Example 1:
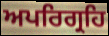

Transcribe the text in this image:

ਅਪਰਿਗ੍ਰਹਿ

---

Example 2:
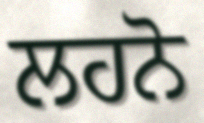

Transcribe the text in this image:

ਲਹਨੋ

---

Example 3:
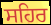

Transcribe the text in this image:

ਸਹਿਰ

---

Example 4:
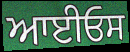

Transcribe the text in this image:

ਆਈਓਸ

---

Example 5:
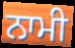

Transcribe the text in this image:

ਨਾਮੀ